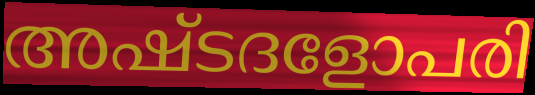
അഷ്ടദളോപരി